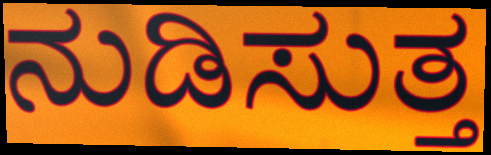
ನುಡಿಸುತ್ತ